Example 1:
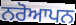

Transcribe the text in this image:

ਨਰੋਆਪਨ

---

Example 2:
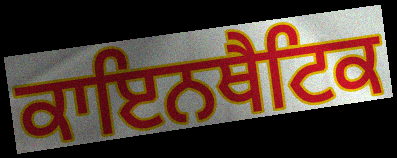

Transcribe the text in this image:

ਕਾਇਨਥੈਟਿਕ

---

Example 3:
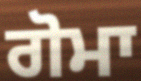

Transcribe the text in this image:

ਗੋਮਾ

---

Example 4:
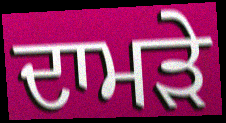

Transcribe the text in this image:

ਦਾਮੜੇ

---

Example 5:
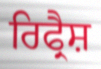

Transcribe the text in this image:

ਰਿਫ੍ਰੈਸ਼